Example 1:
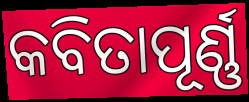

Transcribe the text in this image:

କବିତାପୂର୍ଣ୍ଣ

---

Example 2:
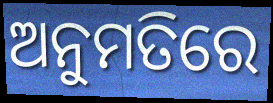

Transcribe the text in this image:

ଅନୁମତିରେ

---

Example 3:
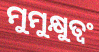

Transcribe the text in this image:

ମୁମୁକ୍ଷୁତ୍ୱଂ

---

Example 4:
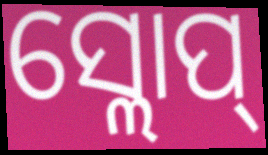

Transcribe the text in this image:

ସ୍ଲୋପ୍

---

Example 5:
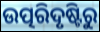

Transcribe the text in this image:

ଉତ୍ପରିଦୃଷ୍ଟିରୁ